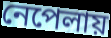
নেপেলায়